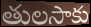
తులసాకు